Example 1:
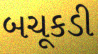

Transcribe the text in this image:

બચૂકડી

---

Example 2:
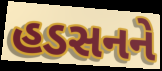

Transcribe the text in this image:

હડસનને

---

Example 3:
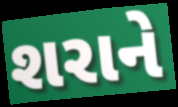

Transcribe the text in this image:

શરાને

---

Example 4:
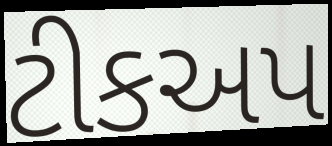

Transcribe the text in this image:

ટીકઅપ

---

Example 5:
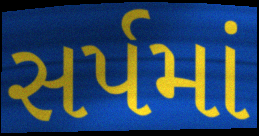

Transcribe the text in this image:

સર્પમાં